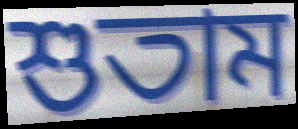
শুতাম